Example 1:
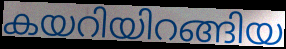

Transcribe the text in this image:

കയറിയിറങ്ങിയ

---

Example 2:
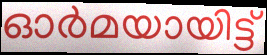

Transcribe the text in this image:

ഓർമയായിട്ട്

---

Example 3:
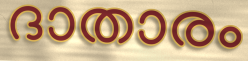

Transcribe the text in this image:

ദാതാരം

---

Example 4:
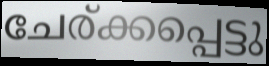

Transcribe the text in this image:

ചേര്ക്കപ്പെട്ടു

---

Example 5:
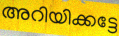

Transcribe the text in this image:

അറിയിക്കട്ടേ